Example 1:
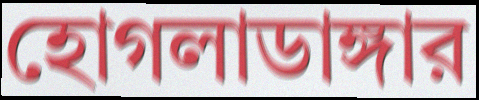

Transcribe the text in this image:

হোগলাডাঙ্গার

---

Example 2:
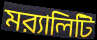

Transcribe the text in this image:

মর‍্যালিটি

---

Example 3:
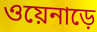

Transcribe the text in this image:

ওয়েনাড়ে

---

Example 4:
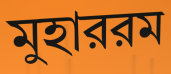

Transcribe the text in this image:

মুহাররম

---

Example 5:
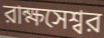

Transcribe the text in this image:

রাক্ষসেশ্বর